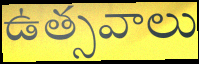
ఉత్సవాలు